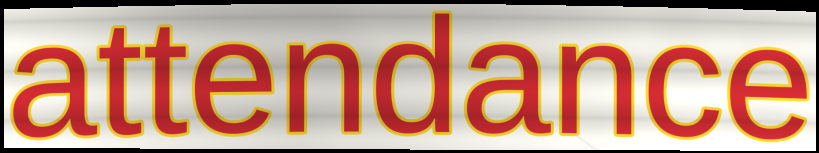
attendance